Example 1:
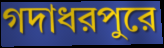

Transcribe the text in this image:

গদাধরপুরে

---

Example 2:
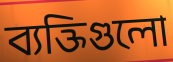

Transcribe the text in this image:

ব্যক্তিগুলো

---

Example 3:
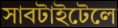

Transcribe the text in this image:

সাবটাইটেলে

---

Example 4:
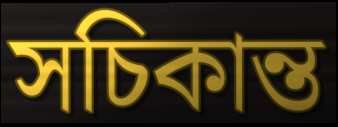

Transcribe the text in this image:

সচিকান্ত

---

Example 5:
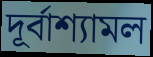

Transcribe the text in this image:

দূর্বাশ্যামল